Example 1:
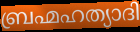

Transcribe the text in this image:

ബ്രഹ്മഹത്യാദി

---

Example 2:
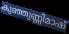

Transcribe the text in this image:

കുഞ്ഞുണ്ണിമാഷ്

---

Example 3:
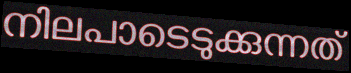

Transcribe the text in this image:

നിലപാടെടുക്കുന്നത്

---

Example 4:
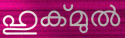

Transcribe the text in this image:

ഹുക്മുൽ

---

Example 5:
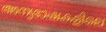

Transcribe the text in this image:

അന്യഭാഷകളിലെ